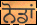
ਨੋਡਾਂ